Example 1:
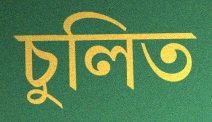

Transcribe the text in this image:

চুলিত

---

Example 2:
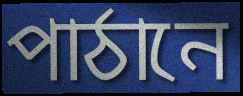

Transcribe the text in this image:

পাঠানে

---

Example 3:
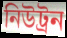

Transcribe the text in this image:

নিউট্ৰন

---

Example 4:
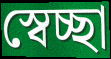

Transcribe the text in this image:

স্বেচ্ছা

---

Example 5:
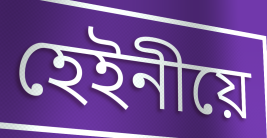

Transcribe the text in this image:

হেইনীয়ে